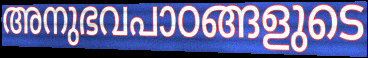
അനുഭവപാഠങ്ങളുടെ